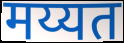
मय्यत